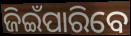
ଜିଇଁପାରିବେ